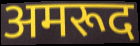
अमरूद